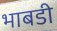
भाबडी